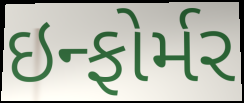
ઇન્ફોર્મર